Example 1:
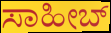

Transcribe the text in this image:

ಸಾಹೀಬ್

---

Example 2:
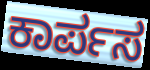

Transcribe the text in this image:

ಕಾರ್ಪಸ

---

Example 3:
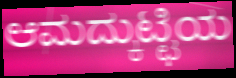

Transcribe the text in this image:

ಆಮದ್ಕುಟ್ಟಿಯ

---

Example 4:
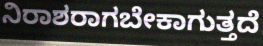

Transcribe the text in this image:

ನಿರಾಶರಾಗಬೇಕಾಗುತ್ತದೆ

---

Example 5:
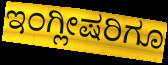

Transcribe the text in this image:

ಇಂಗ್ಲೀಷರಿಗೂ